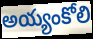
అయ్యంకోలి